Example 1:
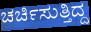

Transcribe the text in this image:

ಚರ್ಚಿಸುತ್ತಿದ್ದ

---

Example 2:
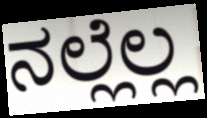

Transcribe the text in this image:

ನಲ್ಲೆಲ್ಲ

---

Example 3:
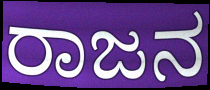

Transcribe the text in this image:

ರಾಜನ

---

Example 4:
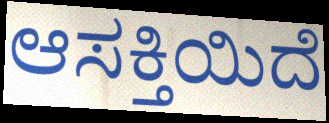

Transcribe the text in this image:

ಆಸಕ್ತಿಯಿದೆ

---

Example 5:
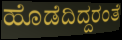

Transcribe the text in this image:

ಹೊಡೆದಿದ್ದರಂತೆ